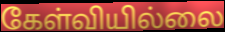
கேள்வியில்லை